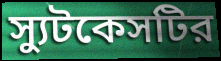
স্যুটকেসটির